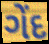
ગેંદ